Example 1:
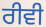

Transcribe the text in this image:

ਰੀਵੀ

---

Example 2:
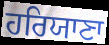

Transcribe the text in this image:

ਹਰਿਯਾਣਾ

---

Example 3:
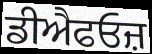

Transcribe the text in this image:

ਡੀਐਫਓਜ਼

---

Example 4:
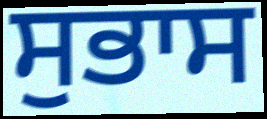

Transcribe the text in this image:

ਸੁਭਾਸ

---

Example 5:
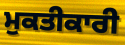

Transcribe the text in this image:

ਮੁਕਤੀਕਾਰੀ